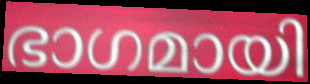
ഭാഗമായി